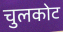
चुलकोट